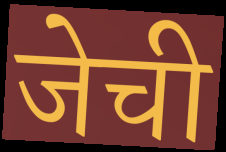
जेची